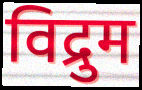
विद्रुम